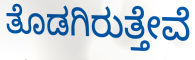
ತೊಡಗಿರುತ್ತೇವೆ